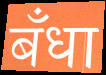
बँधा